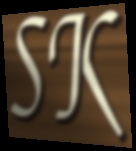
SK